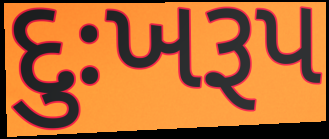
દુઃખરૂપ